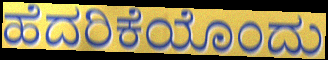
ಹೆದರಿಕೆಯೊಂದು